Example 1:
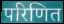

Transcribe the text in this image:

परिणित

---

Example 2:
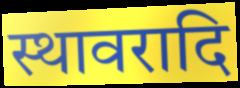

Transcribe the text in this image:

स्थावरादि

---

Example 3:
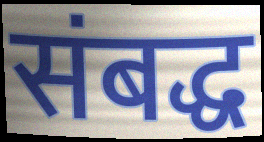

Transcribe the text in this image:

संबद्ध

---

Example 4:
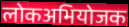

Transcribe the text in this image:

लोकअभियोजक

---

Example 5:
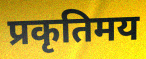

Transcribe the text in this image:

प्रकृतिमय